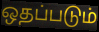
ஒதப்படும்